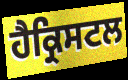
ਹੈਕ੍ਰਿਸਟਲ